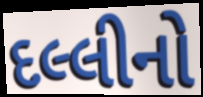
દલ્લીનો